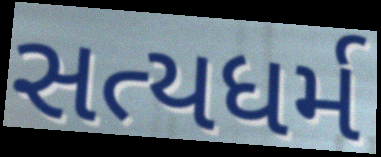
સત્યધર્મ